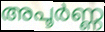
അപൂർണ്ണ